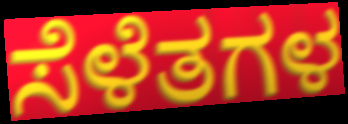
ಸೆಳೆತಗಳ